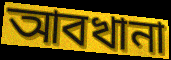
আবখানা